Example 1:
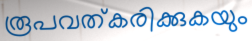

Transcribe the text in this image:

രൂപവത്കരിക്കുകയും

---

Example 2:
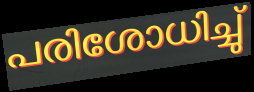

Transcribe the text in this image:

പരിശോധിച്ചു്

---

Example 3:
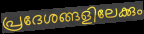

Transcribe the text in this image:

പ്രദേശങ്ങളിലേക്കും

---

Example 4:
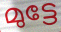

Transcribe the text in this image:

മുട്ടേ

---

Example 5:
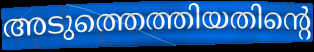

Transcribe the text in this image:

അടുത്തെത്തിയതിന്റെ